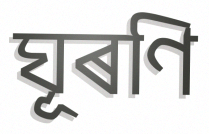
ঘূৰণি